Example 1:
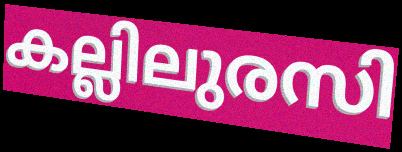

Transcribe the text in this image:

കല്ലിലുരസി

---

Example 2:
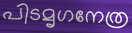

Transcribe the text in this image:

പിടമൃഗനേത്ര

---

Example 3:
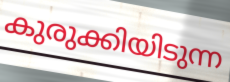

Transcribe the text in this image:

കുരുക്കിയിടുന്ന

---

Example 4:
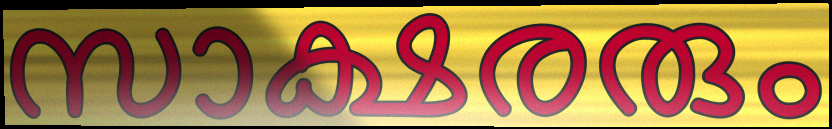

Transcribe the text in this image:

സാക്ഷരരും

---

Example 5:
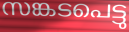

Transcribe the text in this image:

സങ്കടപെട്ടു